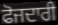
ਫੋਜਦਾਰੀ